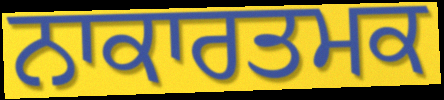
ਨਾਕਾਰਤਮਕ